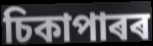
চিকাপাৰৰ